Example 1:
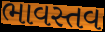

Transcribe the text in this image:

ભાવસ્તવ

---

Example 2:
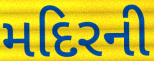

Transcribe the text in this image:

મદિરની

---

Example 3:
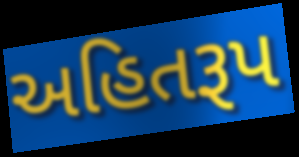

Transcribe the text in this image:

અહિતરૂપ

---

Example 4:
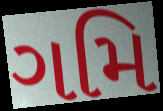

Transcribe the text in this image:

ગમિ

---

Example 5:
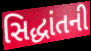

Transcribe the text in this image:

સિદ્ધાંતની